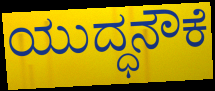
ಯುದ್ಧನೌಕೆ